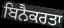
ਬਿਨੈਕਰਤਾ